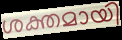
ശക്തമായി